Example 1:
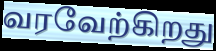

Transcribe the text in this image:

வரவேற்கிறது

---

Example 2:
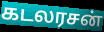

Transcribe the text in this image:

கடலரசன்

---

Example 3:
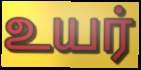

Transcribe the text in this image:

உயர்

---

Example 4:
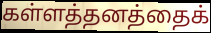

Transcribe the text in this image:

கள்ளத்தனத்தைக்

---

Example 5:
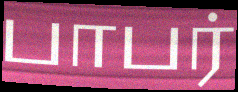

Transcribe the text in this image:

பாபர்